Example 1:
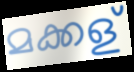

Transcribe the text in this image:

മക്കള്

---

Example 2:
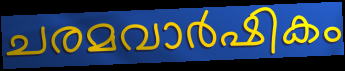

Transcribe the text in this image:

ചരമവാർഷികം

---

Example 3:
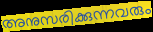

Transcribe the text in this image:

അനുസരിക്കുന്നവരും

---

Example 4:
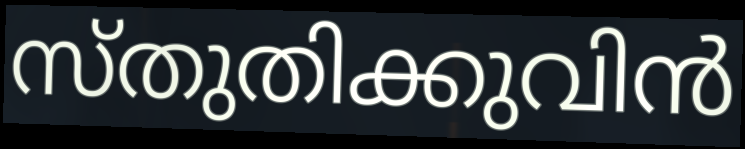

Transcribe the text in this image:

സ്തുതിക്കുവിൻ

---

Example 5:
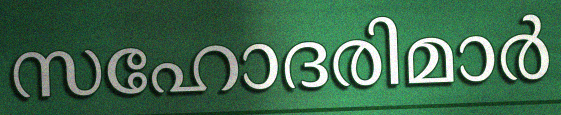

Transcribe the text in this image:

സഹോദരിമാർ